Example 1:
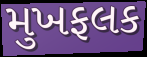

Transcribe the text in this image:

મુખફલક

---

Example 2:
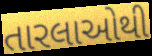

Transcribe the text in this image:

તારલાઓથી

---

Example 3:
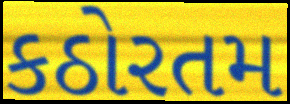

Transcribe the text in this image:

કઠોરતમ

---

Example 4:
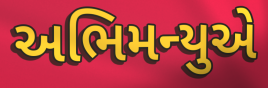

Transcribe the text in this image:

અભિમન્યુએ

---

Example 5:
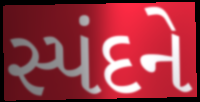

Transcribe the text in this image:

સ્પંદને